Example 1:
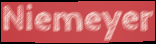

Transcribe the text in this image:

Niemeyer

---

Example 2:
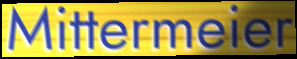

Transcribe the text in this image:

Mittermeier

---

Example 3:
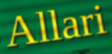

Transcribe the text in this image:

Allari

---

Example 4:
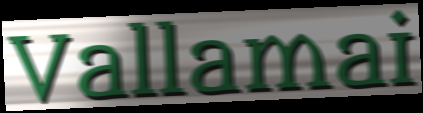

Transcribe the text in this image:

Vallamai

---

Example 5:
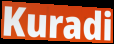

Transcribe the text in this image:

Kuradi